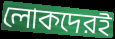
লোকদেরই